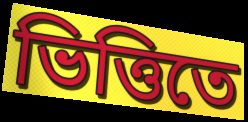
ভিত্তিতে